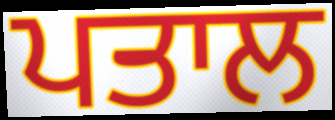
ਪਤਾਲ